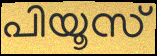
പിയൂസ്